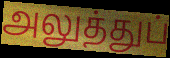
அலுத்துப்